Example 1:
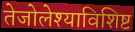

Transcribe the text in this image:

तेजोलेश्याविशिष्ट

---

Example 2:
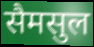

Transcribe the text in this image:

सैमसुल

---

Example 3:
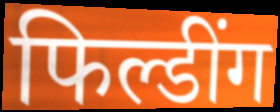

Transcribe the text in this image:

फिल्डींग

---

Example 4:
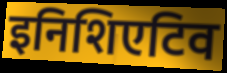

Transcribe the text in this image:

इनिशिएटिव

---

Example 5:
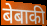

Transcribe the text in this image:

बेबाकी